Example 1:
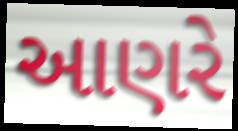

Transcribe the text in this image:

આણરે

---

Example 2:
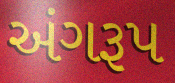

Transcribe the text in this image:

અંગરૂપ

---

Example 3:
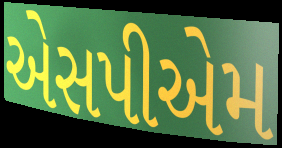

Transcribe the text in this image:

એસપીએમ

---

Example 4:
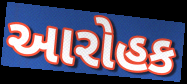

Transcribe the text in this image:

આરોહક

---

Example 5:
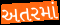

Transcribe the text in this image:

અતરમાં